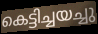
കെട്ടിച്ചയച്ചു